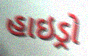
હાઇડ્રો